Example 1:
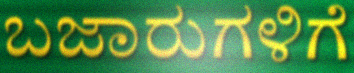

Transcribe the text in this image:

ಬಜಾರುಗಳಿಗೆ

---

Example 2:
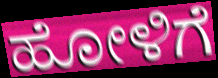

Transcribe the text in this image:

ಹೋಳಿಗೆ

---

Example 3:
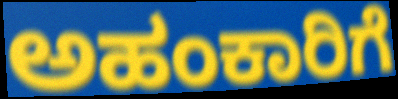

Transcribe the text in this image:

ಅಹಂಕಾರಿಗೆ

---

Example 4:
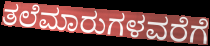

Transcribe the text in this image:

ತಲೆಮಾರುಗಳವರೆಗೆ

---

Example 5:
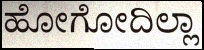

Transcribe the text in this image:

ಹೋಗೋದಿಲ್ಲಾ